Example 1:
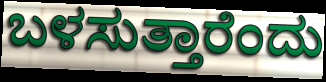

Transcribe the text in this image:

ಬಳಸುತ್ತಾರೆಂದು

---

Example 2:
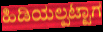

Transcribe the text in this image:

ಹಿಡಿಯಲ್ಪಟ್ಟಾಗ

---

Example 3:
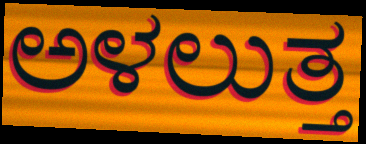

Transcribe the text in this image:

ಅಳಲುತ್ತ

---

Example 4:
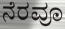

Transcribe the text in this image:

ನೆರವೂ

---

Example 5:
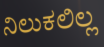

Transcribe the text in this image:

ನಿಲುಕಲಿಲ್ಲ